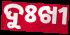
ଦୁଃଖୀ